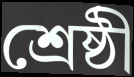
শ্রেষ্ঠী